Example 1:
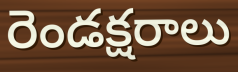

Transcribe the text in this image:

రెండక్షరాలు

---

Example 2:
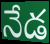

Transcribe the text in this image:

నేడ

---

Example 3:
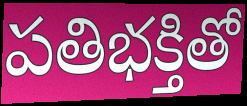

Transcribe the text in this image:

పతిభక్తితో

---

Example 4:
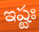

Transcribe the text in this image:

ఇష్టః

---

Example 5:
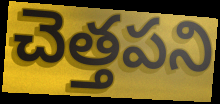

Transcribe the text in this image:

చెత్తపని